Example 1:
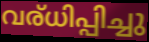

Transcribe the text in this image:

വര്ധിപ്പിച്ചു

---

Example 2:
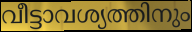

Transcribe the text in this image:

വീട്ടാവശ്യത്തിനും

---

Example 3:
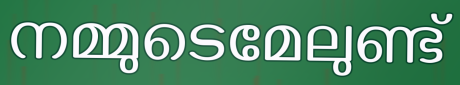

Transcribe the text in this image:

നമ്മുടെമേലുണ്ട്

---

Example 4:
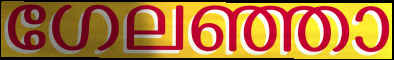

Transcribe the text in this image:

ഗേലഞ്ഞാ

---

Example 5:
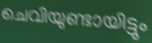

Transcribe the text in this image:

ചെവിയുണ്ടായിട്ടും